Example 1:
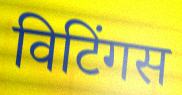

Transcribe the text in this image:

विटिंगस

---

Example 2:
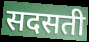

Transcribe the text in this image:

सदसती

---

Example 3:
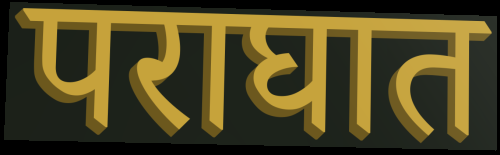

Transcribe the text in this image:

पराघात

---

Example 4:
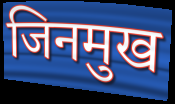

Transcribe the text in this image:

जिनमुख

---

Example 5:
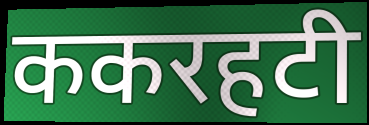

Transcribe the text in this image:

ककरहटी